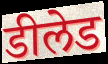
डीलेड